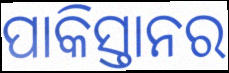
ପାକିସ୍ତାନର